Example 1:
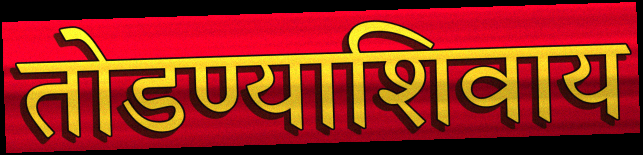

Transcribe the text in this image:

तोडण्याशिवाय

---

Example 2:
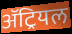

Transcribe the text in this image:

ॲट्रियल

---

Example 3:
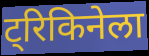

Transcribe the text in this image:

ट्रिकिनेला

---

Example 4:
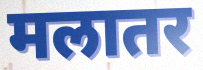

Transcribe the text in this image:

मलातर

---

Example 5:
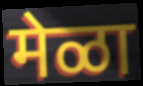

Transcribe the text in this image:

मेळा